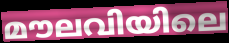
മൗലവിയിലെ